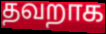
தவறாக